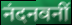
नंदनवनीं